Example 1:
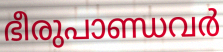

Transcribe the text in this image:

ഭീരുപാണ്ഡവർ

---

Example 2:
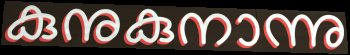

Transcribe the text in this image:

കുനുകുനാന്നു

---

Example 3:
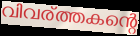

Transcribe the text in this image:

വിവര്ത്തകന്റെ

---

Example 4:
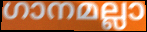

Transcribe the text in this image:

ഗാനമല്ലാ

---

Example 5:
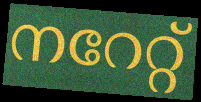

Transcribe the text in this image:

നറേറ്റ്